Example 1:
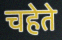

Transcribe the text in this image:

चहेते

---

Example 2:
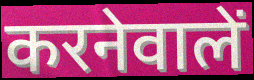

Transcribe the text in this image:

करनेवालें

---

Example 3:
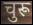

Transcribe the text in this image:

चुरू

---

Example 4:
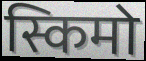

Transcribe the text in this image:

स्किमो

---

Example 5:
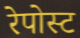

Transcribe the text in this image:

रेपोस्ट